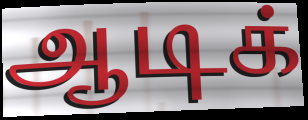
ஆடிக்